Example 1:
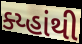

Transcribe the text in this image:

ક્ય્હાંથી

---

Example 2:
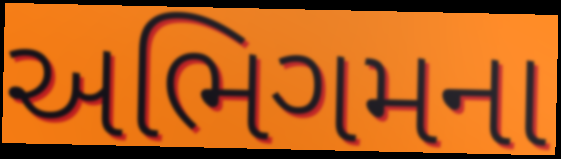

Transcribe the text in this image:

અભિગમના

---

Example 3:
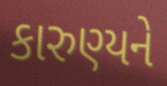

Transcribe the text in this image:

કારુણ્યને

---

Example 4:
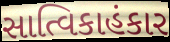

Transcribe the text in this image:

સાત્વિકાહંકાર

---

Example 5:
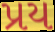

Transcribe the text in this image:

પ્રય